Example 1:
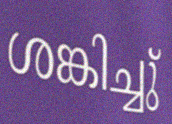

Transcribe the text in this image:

ശങ്കിച്ചു്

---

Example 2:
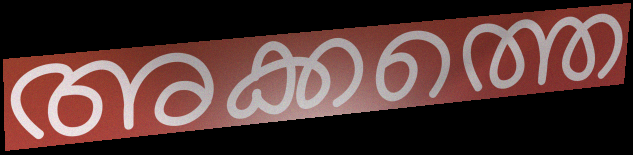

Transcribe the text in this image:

അക്കത്തെ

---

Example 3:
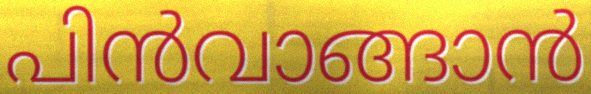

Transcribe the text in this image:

പിൻവാങ്ങാൻ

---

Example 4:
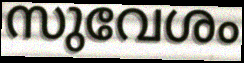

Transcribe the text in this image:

സുവേശം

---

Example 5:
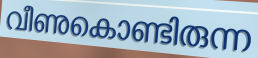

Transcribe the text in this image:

വീണുകൊണ്ടിരുന്ന